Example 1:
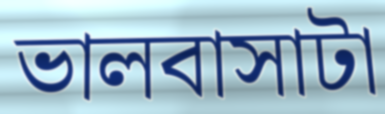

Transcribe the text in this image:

ভালবাসাটা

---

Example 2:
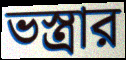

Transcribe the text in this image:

ভস্ত্রার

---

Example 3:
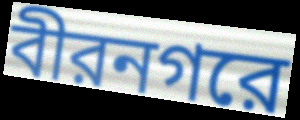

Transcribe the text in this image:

বীরনগরে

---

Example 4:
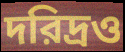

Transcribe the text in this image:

দরিদ্রও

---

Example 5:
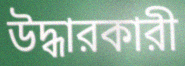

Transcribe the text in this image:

উদ্ধারকারী